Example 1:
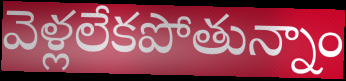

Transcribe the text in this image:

వెళ్లలేకపోతున్నాం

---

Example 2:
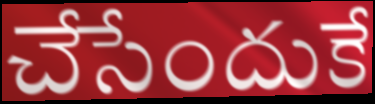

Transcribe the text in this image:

చేసేందుకే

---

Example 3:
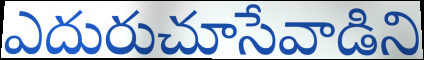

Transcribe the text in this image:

ఎదురుచూసేవాడిని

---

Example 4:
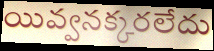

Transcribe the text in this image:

యివ్వనక్కరలేదు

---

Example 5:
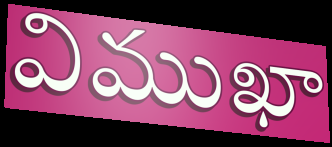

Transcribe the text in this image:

విముఖా